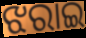
ଝରାଇ